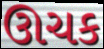
ઊચક